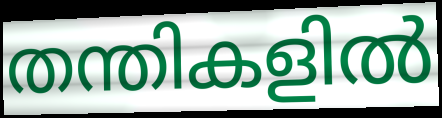
തന്തികളിൽ